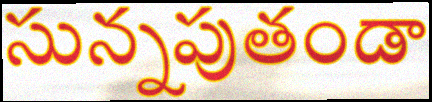
సున్నపుతండా